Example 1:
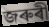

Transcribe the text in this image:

জৰুৰী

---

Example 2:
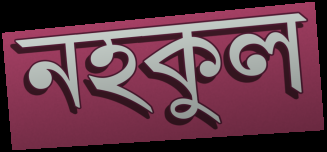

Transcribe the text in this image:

নহকুল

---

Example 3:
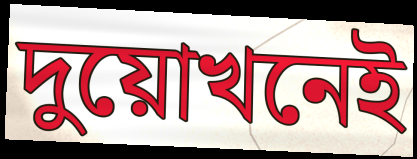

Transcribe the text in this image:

দুয়োখনেই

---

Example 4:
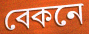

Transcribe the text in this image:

বেকনে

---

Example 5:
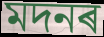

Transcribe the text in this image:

মদনৰ